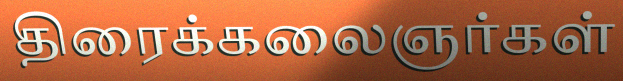
திரைக்கலைஞர்கள்